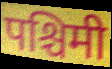
पश्चिमी